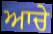
ਆਚੇ